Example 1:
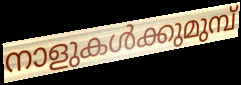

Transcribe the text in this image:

നാളുകൾക്കുമുമ്പ്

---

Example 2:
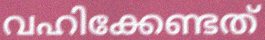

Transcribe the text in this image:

വഹിക്കേണ്ടത്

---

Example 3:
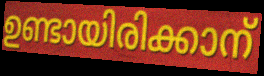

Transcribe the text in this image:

ഉണ്ടായിരിക്കാന്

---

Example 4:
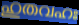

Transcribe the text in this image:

ഹുതവഹഃ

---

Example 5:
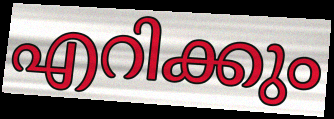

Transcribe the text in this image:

എറിക്കും